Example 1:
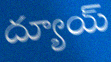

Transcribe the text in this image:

ద్యూయ్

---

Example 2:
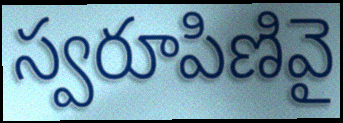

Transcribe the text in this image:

స్వరూపిణివై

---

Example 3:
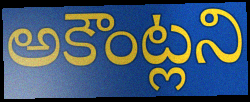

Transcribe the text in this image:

అకౌంట్లని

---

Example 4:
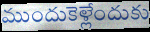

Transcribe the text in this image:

ముందుకెళ్లేందుకు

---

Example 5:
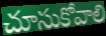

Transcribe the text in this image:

చూసుకోవాలి